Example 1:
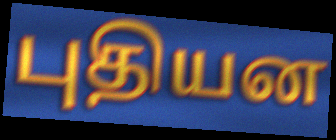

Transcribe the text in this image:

புதியன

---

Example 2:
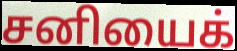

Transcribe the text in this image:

சனியைக்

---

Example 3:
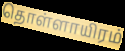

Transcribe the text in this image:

தொள்ளாயிரம்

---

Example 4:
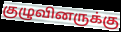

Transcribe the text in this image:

குழுவினருக்கு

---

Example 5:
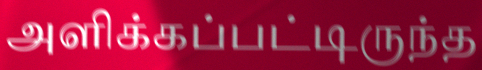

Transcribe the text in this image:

அளிக்கப்பட்டிருந்த